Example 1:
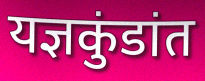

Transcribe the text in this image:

यज्ञकुंडांत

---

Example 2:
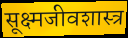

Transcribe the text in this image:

सूक्ष्मजीवशास्त्र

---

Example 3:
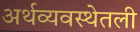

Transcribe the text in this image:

अर्थव्यवस्थेतली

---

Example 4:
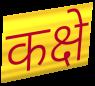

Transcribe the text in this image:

कक्षे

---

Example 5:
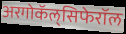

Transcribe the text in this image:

अरगोकॅल्सिफेरॉल